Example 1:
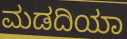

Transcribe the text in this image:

ಮಡದಿಯಾ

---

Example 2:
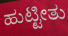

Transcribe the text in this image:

ಹುಟ್ಟೀತು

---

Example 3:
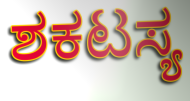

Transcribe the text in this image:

ಶಕಟಸ್ಯ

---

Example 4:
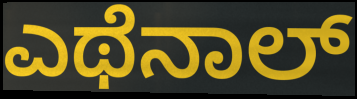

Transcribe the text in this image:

ಎಥೆನಾಲ್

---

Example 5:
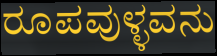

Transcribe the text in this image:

ರೂಪವುಳ್ಳವನು